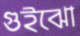
গুইঝো